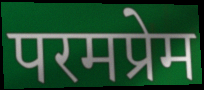
परमप्रेम